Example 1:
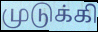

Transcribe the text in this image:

முடுக்கி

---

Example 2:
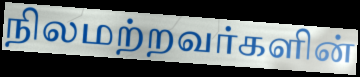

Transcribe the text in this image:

நிலமற்றவர்களின்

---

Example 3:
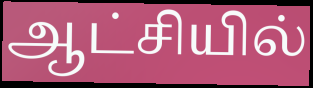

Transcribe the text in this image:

ஆட்சியில்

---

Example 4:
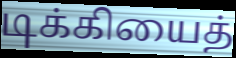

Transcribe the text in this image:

டிக்கியைத்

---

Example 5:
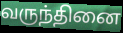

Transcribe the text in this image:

வருந்தினை